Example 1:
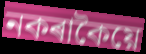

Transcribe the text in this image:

নকৰাকৈয়ে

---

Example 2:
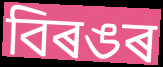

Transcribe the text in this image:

বিৰঙৰ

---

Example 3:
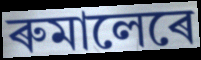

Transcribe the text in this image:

ৰুমালেৰে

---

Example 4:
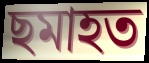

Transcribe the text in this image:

ছমাহত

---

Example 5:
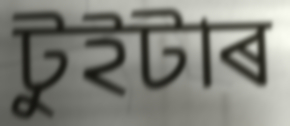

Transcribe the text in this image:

টুইটাৰ